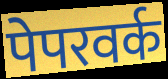
पेपरवर्क